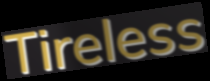
Tireless